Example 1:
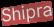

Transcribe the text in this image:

Shipra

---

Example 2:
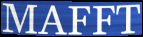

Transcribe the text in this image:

MAFFT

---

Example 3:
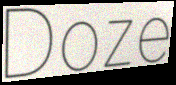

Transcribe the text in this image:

Doze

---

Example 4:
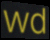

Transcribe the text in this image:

wd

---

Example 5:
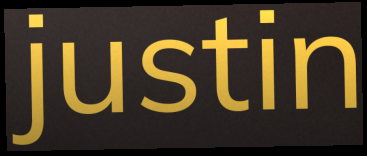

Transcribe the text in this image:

justin